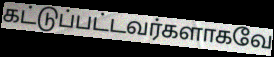
கட்டுப்பட்டவர்களாகவே